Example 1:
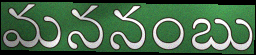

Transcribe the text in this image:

మననంబు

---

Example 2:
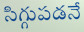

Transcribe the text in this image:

సిగ్గుపడనే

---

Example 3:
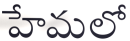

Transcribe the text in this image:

హేమలో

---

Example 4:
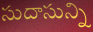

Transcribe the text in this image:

సుదాసున్ని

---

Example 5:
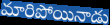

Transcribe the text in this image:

మారిపోయినాడు